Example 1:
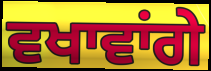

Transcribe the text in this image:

ਵਖਾਵਾਂਗੇ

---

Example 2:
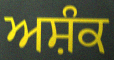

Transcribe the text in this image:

ਅਸ਼ੰਕ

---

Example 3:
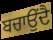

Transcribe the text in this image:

ਬਚਾਉਂਦੈ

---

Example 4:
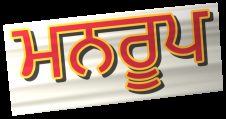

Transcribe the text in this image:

ਮਨਰੂਪ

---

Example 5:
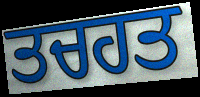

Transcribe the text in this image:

ਤਚਹਤ